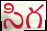
సిగ